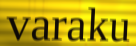
varaku